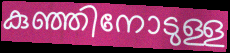
കുഞ്ഞിനോടുള്ള